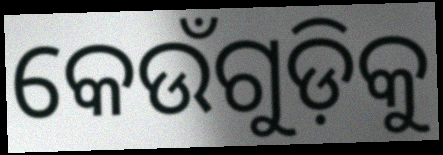
କେଉଁଗୁଡ଼ିକୁ